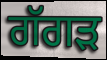
ਗੱਗੜ